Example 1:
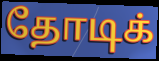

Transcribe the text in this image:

தோடிக்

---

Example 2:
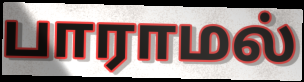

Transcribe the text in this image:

பாராமல்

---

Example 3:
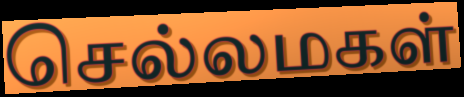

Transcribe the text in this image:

செல்லமகள்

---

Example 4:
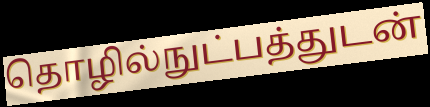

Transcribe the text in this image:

தொழில்நுட்பத்துடன்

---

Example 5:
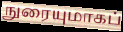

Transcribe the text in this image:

நுரையுமாகப்